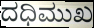
ದಧಿಮುಖ